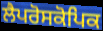
ਲੈਪਰੋਸਕੋਪਿਕ